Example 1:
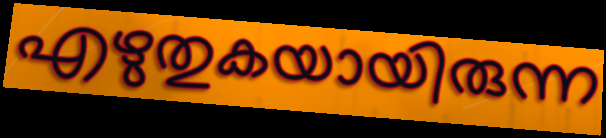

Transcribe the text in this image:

എഴുതുകയായിരുന്ന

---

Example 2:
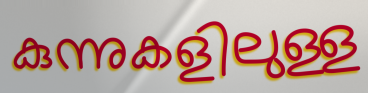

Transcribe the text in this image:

കുന്നുകളിലുള്ള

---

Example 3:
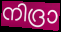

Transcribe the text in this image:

നിദ്രാ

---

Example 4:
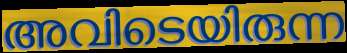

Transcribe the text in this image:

അവിടെയിരുന്ന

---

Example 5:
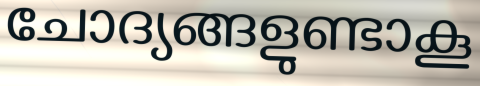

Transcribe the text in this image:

ചോദ്യങ്ങളുണ്ടാകൂ